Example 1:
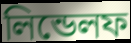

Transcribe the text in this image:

লিন্ডেলফ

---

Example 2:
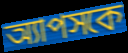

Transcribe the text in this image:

অ্যাপসকে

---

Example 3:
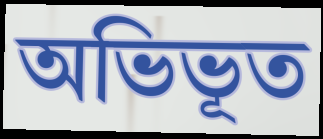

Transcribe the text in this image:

অভিভূত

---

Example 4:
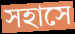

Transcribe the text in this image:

সহাসে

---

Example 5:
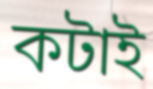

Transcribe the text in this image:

কটাই